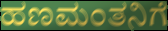
ಹಣಮಂತನಿಗೆ